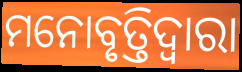
ମନୋବୃତ୍ତିଦ୍ଵାରା